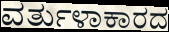
ವರ್ತುಳಾಕಾರದ